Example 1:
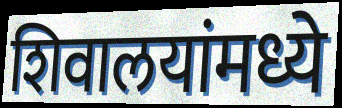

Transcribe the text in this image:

शिवालयांमध्ये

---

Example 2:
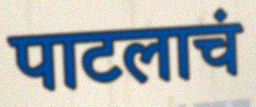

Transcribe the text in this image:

पाटलाचं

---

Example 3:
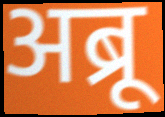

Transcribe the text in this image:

अब्रू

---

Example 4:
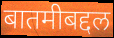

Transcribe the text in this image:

बातमीबद्दल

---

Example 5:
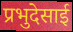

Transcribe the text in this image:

प्रभुदेसाई